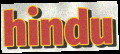
hindu